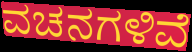
ವಚನಗಳಿವೆ